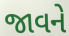
જાવને